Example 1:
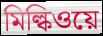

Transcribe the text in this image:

মিল্কিওয়ে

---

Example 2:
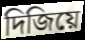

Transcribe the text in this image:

দিজিয়ে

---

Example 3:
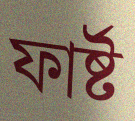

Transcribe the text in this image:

ফার্ষ্ট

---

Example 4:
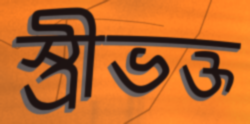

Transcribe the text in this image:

স্ত্রীভক্ত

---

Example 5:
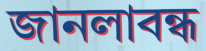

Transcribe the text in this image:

জানলাবন্ধ